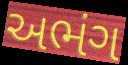
અભંગ